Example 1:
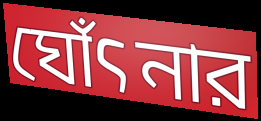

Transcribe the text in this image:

ঘোঁৎনার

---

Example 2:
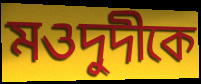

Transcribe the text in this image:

মওদুদীকে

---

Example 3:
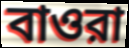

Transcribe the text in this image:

বাওরা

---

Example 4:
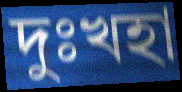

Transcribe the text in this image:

দুঃখহা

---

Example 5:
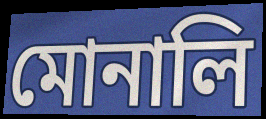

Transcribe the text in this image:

মোনালি